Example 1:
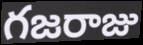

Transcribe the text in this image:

గజరాజు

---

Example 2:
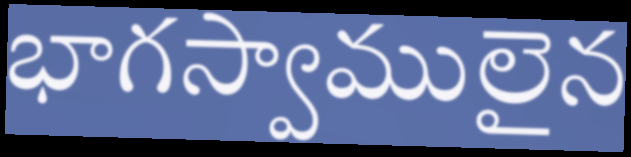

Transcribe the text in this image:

భాగస్వాములైన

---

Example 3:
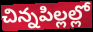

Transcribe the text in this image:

చిన్నపిల్లల్లో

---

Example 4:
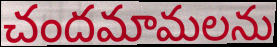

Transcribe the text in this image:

చందమామలను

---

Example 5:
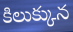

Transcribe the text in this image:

కిలుక్కున